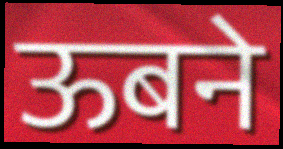
ऊबने